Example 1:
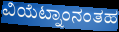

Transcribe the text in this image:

ವಿಯೆಟ್ನಾಂನಂತಹ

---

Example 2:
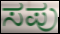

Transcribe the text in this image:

ಸಪು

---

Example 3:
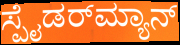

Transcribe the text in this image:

ಸ್ಪೈಡರ್‌ಮ್ಯಾನ್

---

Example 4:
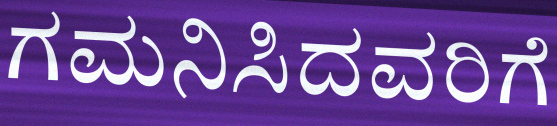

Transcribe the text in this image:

ಗಮನಿಸಿದವರಿಗೆ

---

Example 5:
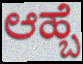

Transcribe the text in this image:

ಆಹ್ಬೆ